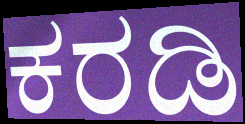
ಕರಡಿ